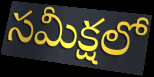
సమీక్షలో